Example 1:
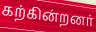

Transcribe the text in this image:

கற்கின்றனர்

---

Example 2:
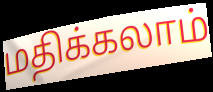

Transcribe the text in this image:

மதிக்கலாம்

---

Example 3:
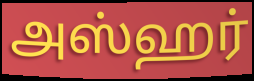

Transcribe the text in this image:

அஸ்ஹர்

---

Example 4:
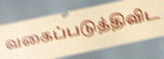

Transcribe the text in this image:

வகைப்படுத்திவிட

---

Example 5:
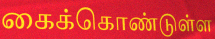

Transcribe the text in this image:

கைக்கொண்டுள்ள